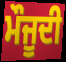
ਮੌਜੂਦੀ